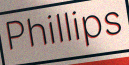
Phillips